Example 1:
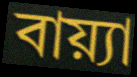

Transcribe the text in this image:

বায়্যা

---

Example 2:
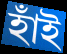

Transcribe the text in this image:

হাঁই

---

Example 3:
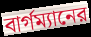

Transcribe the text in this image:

বার্গম্যানের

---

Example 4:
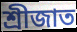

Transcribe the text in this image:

শ্রীজাত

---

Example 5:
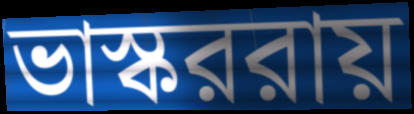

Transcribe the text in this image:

ভাস্কররায়